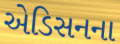
એડિસનના